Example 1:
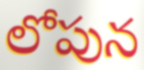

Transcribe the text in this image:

లోపున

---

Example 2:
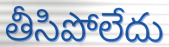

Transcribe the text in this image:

తీసిపోలేదు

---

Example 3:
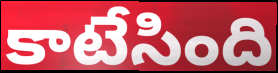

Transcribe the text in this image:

కాటేసింది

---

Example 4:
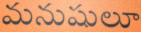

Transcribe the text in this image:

మనుషులూ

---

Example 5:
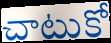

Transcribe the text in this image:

చాటుకో